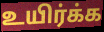
உயிர்க்க